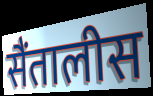
सैंतालीस